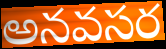
అనవసర